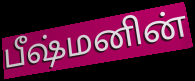
பீஷ்மனின்